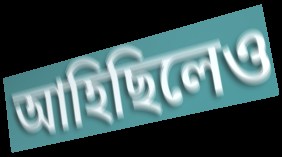
আহিছিলেও